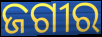
ଜଗୀର